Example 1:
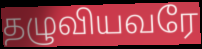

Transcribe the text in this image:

தழுவியவரே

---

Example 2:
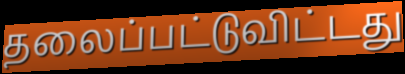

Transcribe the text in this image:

தலைப்பட்டுவிட்டது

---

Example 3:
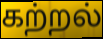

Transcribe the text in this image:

கற்றல்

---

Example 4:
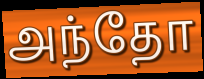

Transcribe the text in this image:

அந்தோ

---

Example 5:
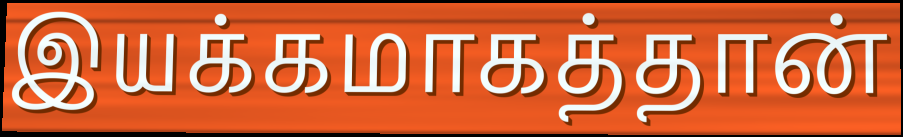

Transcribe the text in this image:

இயக்கமாகத்தான்